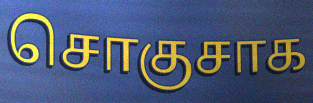
சொகுசாக